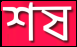
শষ